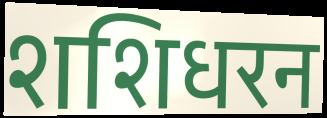
शशिधरन